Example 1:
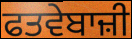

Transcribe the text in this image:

ਫਤਵੇਬਾਜ਼ੀ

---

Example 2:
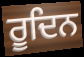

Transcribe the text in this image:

ਰੂਦਿਨ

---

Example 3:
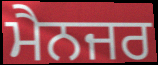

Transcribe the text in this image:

ਮੈਨਜਰ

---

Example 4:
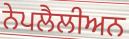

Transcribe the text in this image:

ਨੇਪਲੈਲੀਅਨ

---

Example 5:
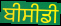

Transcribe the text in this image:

ਬੀਸੀਡੀ